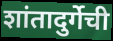
शांतादुर्गेची